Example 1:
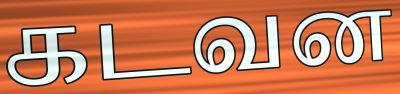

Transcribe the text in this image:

கடவன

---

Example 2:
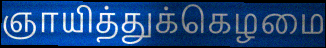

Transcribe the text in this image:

ஞாயித்துக்கெழமை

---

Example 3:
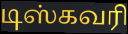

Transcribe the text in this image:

டிஸ்கவரி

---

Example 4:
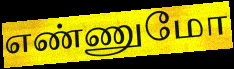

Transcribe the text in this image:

எண்ணுமோ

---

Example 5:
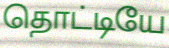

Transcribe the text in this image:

தொட்டியே